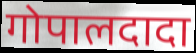
गोपालदादा